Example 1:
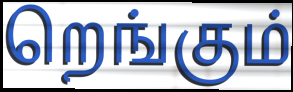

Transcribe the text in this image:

றெங்கும்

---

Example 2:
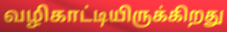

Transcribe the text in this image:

வழிகாட்டியிருக்கிறது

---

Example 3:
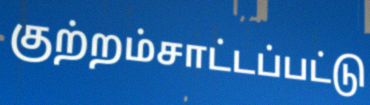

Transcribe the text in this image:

குற்றம்சாட்டப்பட்டு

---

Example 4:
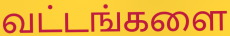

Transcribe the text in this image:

வட்டங்களை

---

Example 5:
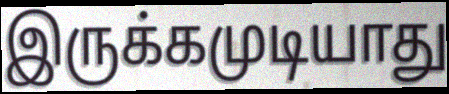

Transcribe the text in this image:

இருக்கமுடியாது